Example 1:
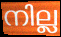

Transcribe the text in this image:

നില്ല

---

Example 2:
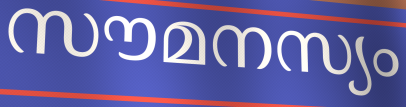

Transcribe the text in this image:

സൗമനസ്യം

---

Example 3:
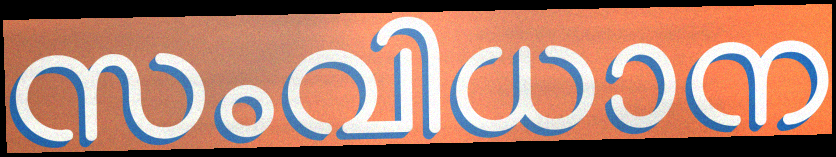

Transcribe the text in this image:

സംവിധാന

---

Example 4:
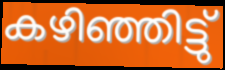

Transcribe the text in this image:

കഴിഞ്ഞിട്ടു്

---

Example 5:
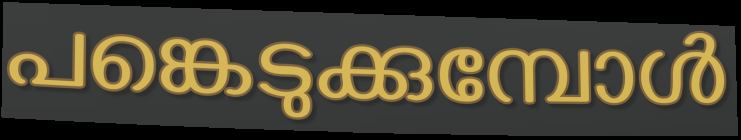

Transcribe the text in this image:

പങ്കെടുക്കുമ്പോൾ